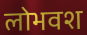
लोभवश